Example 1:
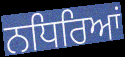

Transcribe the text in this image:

ਨਧਿਰਿਆਂ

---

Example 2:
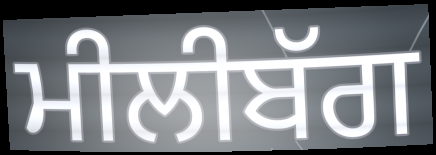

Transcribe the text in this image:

ਮੀਲੀਬੱਗ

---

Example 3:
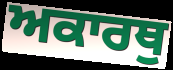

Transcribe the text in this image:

ਅਕਾਰਥੁ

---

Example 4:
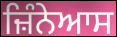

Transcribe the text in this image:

ਜ਼ਿੰਨੇਆਸ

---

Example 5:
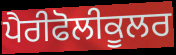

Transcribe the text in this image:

ਪੈਰੀਫੋਲੀਕੂਲਰ